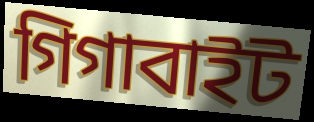
গিগাবাইট